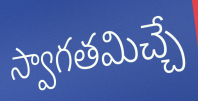
స్వాగతమిచ్చే